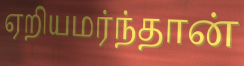
ஏறியமர்ந்தான்